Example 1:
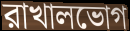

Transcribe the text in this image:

রাখালভোগ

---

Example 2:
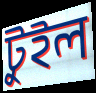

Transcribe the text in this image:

টুইল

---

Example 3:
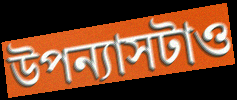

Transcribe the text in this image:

উপন্যাসটাও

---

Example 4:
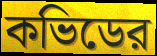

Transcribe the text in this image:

কভিডের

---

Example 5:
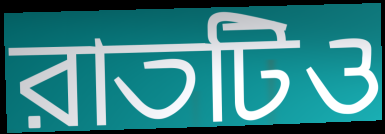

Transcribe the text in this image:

রাতটিও